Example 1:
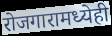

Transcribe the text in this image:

रोजगारामध्येही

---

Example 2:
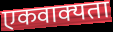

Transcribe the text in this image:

एकवाक्यता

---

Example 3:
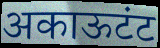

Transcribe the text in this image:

अकाऊटंट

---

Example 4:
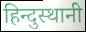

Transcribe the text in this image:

हिन्दुस्थानी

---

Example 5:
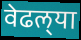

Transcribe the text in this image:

वेढल्या